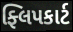
ફ્લિપકાર્ટ